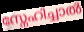
സ്നേഹിച്ചാൽ